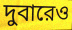
দুবারেও